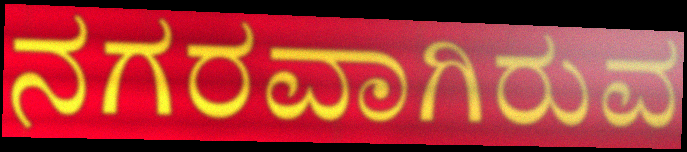
ನಗರವಾಗಿರುವ